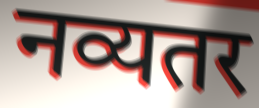
नव्यतर